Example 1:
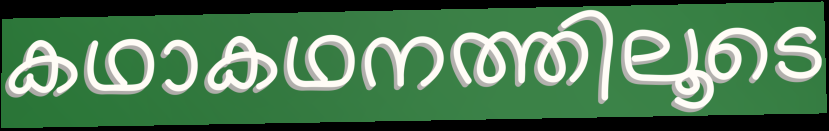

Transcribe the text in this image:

കഥാകഥനത്തിലൂടെ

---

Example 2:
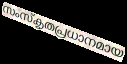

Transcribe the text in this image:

സംസ്‌കൃതപ്രധാനമായ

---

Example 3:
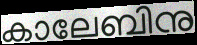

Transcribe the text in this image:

കാലേബിനു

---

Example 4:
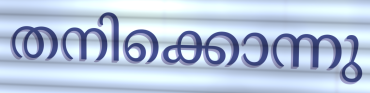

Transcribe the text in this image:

തനിക്കൊന്നു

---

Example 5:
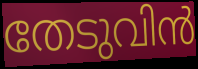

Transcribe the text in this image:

തേടുവിൻ